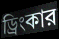
ড্রিংকার